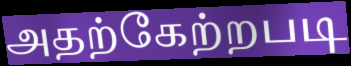
அதற்கேற்றபடி